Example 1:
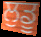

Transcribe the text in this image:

ਲੁਡੂ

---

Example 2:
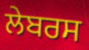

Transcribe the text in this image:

ਲੇਬਰਸ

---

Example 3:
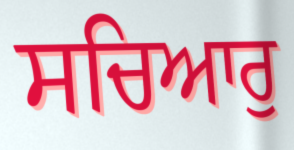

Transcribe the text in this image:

ਸਚਿਆਰੁ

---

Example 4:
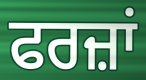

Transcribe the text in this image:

ਫਰਜ਼ਾਂ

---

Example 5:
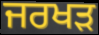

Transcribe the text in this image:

ਜਰਖੜ